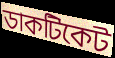
ডাকটিকেট